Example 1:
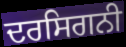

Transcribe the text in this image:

ਦਰਸਿਗਨੀ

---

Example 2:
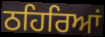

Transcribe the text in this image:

ਠਹਿਰਿਆਂ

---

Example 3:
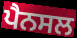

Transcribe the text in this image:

ਪੈਨਸਲ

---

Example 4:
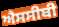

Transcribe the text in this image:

ਐਸਸੀਬੀ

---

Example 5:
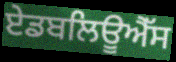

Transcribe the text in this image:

ਏਡਬਲਿਊਐੱਸ